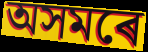
অসমৰে